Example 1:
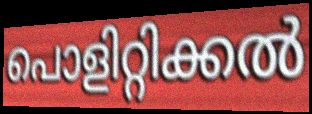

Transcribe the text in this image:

പൊളിറ്റിക്കൽ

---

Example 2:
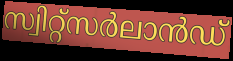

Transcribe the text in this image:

സ്വിറ്റ്സർലാൻഡ്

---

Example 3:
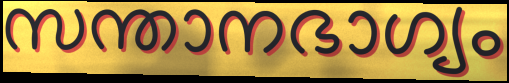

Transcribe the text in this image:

സന്താനഭാഗ്യം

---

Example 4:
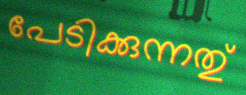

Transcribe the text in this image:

പേടിക്കുന്നതു്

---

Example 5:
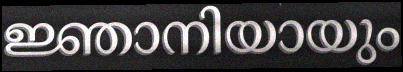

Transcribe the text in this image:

ജ്ഞാനിയായും